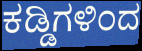
ಕಡ್ಡಿಗಳಿಂದ